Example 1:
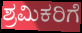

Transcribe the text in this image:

ಶ್ರಮಿಕರಿಗೆ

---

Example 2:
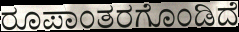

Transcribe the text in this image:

ರೂಪಾಂತರಗೊಂಡಿದೆ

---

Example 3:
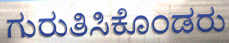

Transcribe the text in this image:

ಗುರುತಿಸಿಕೊಂಡರು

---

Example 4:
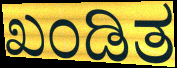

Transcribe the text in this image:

ಖಂಡಿತ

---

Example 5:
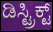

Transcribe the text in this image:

ಡಿಸ್ಟ್ರಿಕ್ಟ್